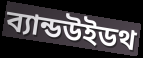
ব্যান্ডউইডথ